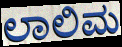
ಲಾಲಿಮ